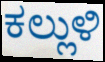
ಕಲ್ಲುಳಿ